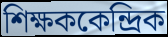
শিক্ষককেন্দ্রিক